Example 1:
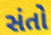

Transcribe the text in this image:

સંતો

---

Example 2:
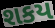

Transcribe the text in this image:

શકય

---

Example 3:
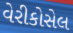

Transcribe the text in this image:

વેરીકોસેલ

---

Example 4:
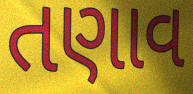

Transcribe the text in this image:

તણાવ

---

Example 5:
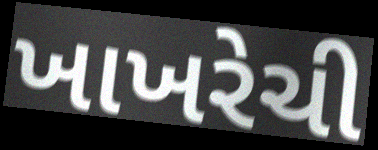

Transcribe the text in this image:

ખાખરેચી